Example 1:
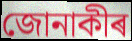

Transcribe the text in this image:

জোনাকীৰ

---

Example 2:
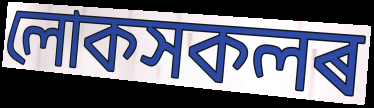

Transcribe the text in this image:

লোকসকলৰ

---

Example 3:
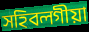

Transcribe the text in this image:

সহিবলগীয়া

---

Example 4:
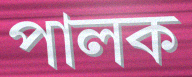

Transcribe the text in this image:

পালক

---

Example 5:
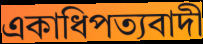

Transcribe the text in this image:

একাধিপত্যবাদী